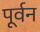
पूर्वन